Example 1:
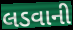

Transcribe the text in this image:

લડવાની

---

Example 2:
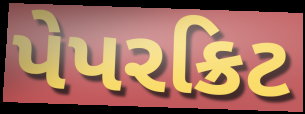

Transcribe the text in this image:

પેપરક્રિટ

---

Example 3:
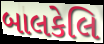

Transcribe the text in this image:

બાલકેલિ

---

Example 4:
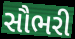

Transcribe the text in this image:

સૌભરી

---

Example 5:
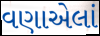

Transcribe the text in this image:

વણાએલાં